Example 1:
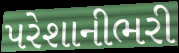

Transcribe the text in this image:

પરેશાનીભરી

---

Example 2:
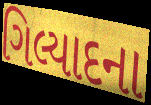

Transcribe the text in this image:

ગિલ્યાદના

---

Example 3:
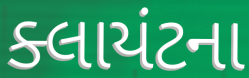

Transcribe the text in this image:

ક્લાયંટના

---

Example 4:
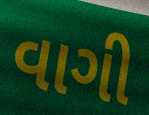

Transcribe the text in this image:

વાગી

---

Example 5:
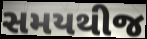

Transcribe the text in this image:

સમયથીજ